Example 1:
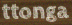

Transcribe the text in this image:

ttonga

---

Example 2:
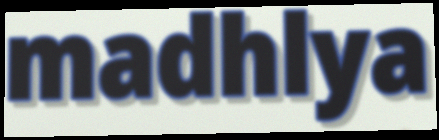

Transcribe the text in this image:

madhlya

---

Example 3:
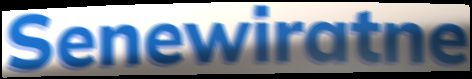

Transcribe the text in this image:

Senewiratne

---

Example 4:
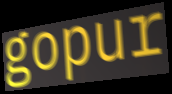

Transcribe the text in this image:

gopur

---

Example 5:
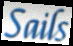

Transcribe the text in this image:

Sails